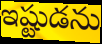
ఇష్టుడను